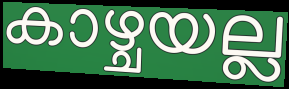
കാഴ്ചയല്ല